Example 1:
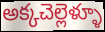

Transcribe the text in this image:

అక్కచెల్లెళ్ళూ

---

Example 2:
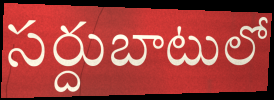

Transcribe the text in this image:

సర్దుబాటులో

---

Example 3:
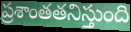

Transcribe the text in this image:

ప్రశాంతతనిస్తుంది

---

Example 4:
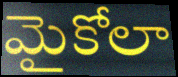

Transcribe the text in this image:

మైకోలా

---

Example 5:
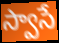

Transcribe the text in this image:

స్వాసే